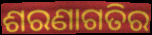
ଶରଣାଗତିର